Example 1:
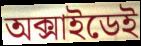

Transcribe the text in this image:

অক্সাইডেই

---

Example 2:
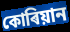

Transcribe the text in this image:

কোৰিয়ান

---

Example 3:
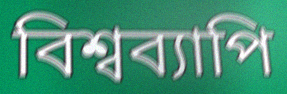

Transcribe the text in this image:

বিশ্বব্যাপি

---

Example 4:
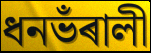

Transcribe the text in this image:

ধনভঁৰালী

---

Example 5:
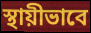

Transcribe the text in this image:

স্থায়ীভাবে